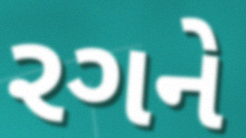
રગને